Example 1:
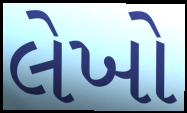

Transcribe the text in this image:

લેખો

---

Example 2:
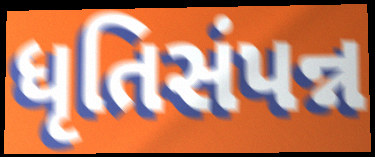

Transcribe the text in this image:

ધૃતિસંપન્ન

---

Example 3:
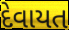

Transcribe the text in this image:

દેવાયત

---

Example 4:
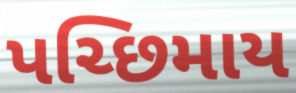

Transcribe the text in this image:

પચ્છિમાય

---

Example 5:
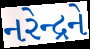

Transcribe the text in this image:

નરેન્દ્રને